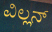
ವಿಲ್ಲನ್